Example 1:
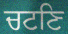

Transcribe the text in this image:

ਚਟਣਿ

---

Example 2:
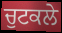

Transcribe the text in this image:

ਚੁਟਕਲੇ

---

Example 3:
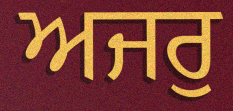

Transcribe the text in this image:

ਅਜਰੁ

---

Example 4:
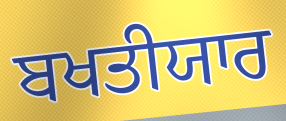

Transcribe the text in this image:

ਬਖਤੀਯਾਰ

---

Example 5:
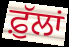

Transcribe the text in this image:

ਫ਼ੁੱਲਾਂ